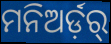
ମନିଅର୍ଡ଼ର୍